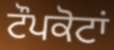
ਟੌਪਕੋਟਾਂ